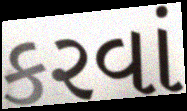
કરવાં